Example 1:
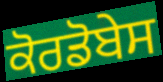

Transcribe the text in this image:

ਕੋਰਡੋਬੇਸ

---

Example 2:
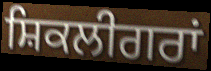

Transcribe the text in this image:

ਸ਼ਿਕਲੀਗਰਾਂ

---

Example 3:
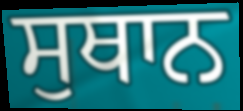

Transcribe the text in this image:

ਸੁਥਾਨ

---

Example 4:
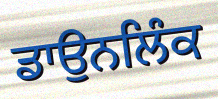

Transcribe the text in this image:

ਡਾਉਨਲਿੰਕ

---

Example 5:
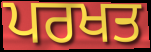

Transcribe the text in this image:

ਪਰਖਤ